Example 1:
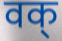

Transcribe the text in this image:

वक्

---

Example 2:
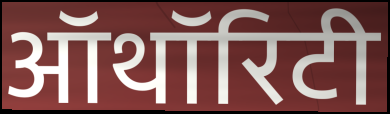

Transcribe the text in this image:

ऑथॉरिटी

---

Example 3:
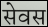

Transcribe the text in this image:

सेवस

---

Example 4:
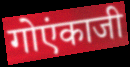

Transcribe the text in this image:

गोएंकाजी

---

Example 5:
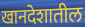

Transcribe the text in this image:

खानदेशातील